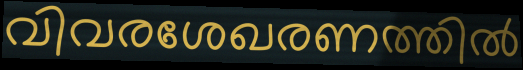
വിവരശേഖരണത്തിൽ